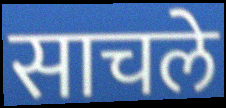
साचले